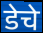
डेचे